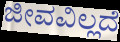
ಜೀವವಿಲ್ಲದೆ